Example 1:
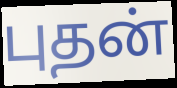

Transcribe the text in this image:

புதன்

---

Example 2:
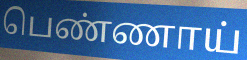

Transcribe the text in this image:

பெண்ணாய்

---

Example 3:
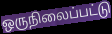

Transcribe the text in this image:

ஒருநிலைப்பட்டு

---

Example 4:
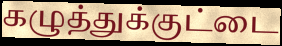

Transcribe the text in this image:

கழுத்துக்குட்டை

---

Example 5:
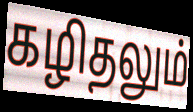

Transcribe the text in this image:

கழிதலும்